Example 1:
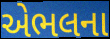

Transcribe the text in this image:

એભલના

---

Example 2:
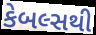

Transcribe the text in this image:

કેબલ્સથી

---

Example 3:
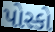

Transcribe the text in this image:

પોસ્કો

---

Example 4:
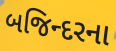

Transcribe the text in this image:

બજિન્દરના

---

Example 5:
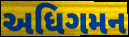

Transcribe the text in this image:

અધિગમન